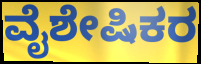
ವೈಶೇಷಿಕರ